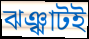
ঝঞ্ঝাটই